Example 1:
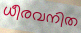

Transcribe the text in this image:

ധീരവനിത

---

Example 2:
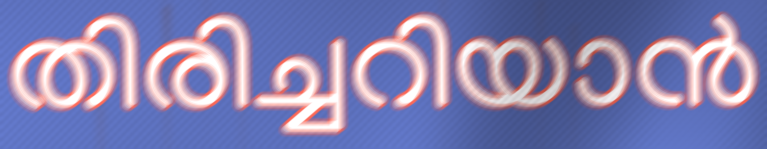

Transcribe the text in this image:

തിരിച്ചറിയാൻ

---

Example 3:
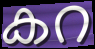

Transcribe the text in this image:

കറ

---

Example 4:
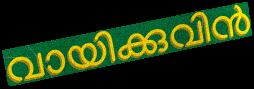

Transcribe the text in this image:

വായിക്കുവിൻ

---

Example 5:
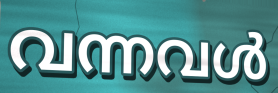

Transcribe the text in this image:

വന്നവൾ